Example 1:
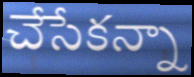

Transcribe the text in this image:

చేసేకన్నా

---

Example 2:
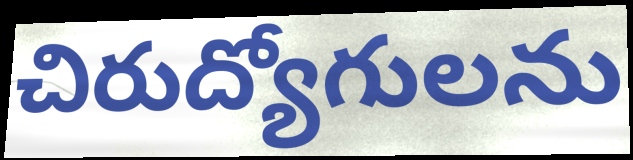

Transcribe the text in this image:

చిరుద్యోగులను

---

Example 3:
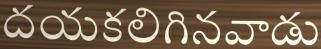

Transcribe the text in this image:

దయకలిగినవాడు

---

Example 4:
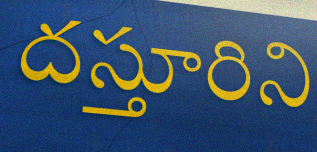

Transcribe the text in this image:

దస్తూరిని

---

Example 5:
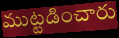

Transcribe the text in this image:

ముట్టడించారు